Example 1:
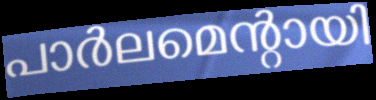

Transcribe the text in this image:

പാർലമെന്റായി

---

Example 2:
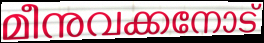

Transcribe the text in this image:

മീനുവക്കനോട്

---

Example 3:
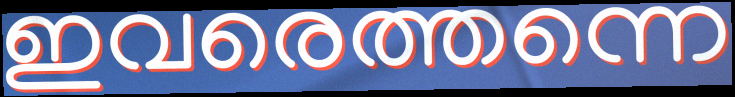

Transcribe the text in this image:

ഇവരെത്തന്നെ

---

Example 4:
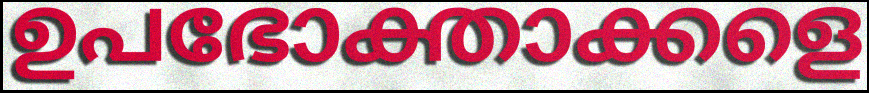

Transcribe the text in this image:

ഉപഭോക്താക്കളെ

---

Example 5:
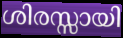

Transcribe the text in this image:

ശിരസ്സായി